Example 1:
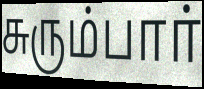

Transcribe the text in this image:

சுரும்பார்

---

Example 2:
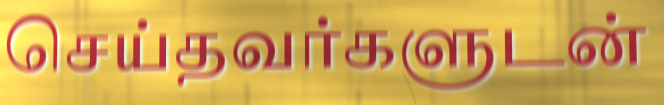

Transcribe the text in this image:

செய்தவர்களுடன்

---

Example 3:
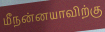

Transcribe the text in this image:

மீநன்னயாவிற்கு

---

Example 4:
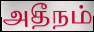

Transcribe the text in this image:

அதீநம்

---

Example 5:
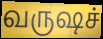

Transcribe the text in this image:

வருஷச்